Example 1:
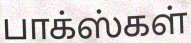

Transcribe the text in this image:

பாக்ஸ்கள்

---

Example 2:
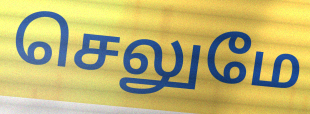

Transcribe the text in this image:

செலுமே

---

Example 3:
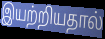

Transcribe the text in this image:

இயற்றியதால்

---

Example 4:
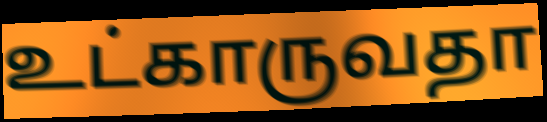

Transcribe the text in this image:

உட்காருவதா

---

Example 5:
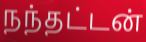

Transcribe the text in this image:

நந்தட்டன்